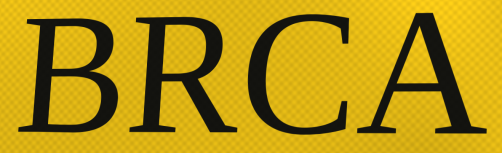
BRCA